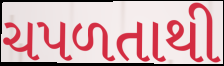
ચપળતાથી